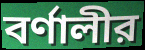
বর্ণালীর